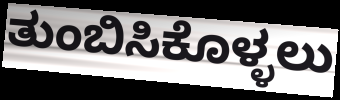
ತುಂಬಿಸಿಕೊಳ್ಳಲು